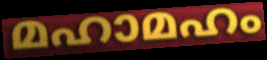
മഹാമഹം